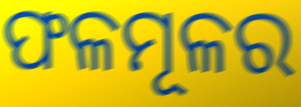
ଫଳମୂଳର